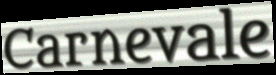
Carnevale